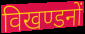
विखण्डनों